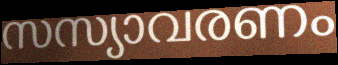
സസ്യാവരണം